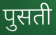
पुसती